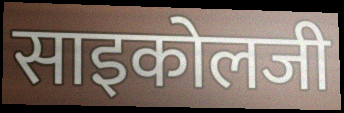
साइकोलजी